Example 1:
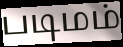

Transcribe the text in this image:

படிமம்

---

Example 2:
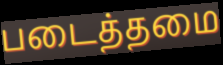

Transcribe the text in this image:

படைத்தமை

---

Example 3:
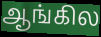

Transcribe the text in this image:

ஆங்கில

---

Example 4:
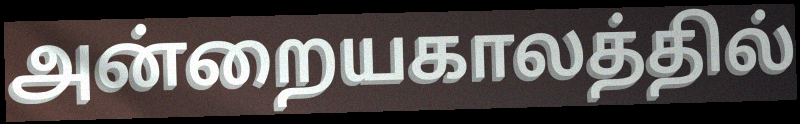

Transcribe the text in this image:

அன்றையகாலத்தில்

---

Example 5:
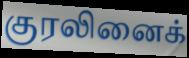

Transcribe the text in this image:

குரலினைக்